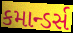
કમાન્ડર્સ